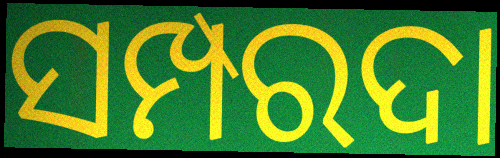
ସମ୍ପରଦା